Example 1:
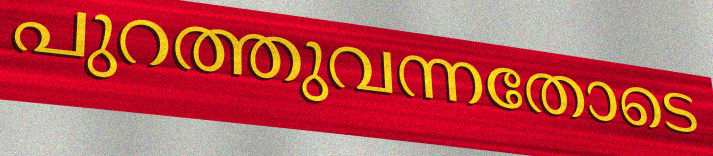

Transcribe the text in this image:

പുറത്തുവന്നതോടെ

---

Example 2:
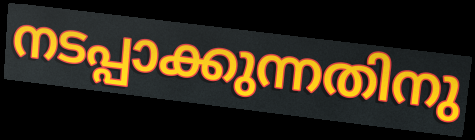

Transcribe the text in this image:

നടപ്പാക്കുന്നതിനു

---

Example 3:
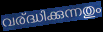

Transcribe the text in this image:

വര്ദ്ധിക്കുന്നതും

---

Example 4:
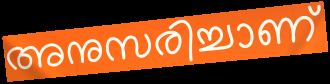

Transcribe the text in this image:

അനുസരിച്ചാണ്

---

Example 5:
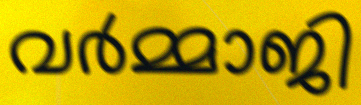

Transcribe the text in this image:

വർമ്മാജി